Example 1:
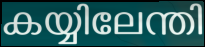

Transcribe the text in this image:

കയ്യിലേന്തി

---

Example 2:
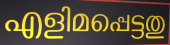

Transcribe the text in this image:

എളിമപ്പെട്ടതു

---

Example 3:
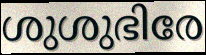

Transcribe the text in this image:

ശുശുഭിരേ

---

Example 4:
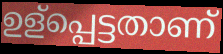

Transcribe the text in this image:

ഉള്പ്പെട്ടതാണ്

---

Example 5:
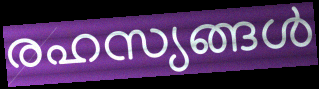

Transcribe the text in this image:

രഹസ്യങ്ങൾ